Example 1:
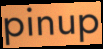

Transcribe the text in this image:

pinup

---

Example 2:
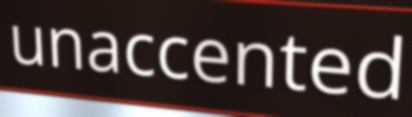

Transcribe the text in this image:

unaccented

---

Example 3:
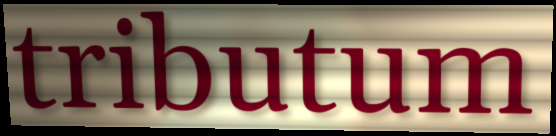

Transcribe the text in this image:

tributum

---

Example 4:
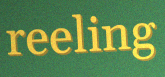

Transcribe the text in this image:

reeling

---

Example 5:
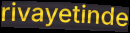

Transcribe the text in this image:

rivayetinde